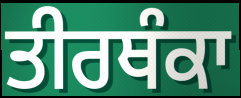
ਤੀਰਥੰਕਾ